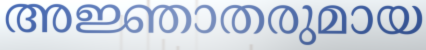
അജ്ഞാതരുമായ